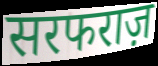
सरफराज़